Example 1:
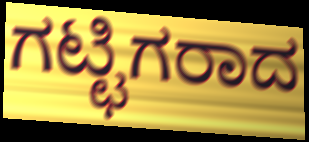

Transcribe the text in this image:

ಗಟ್ಟಿಗರಾದ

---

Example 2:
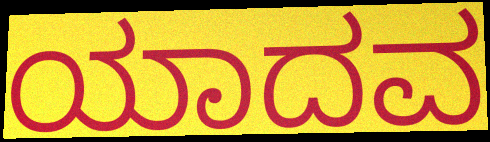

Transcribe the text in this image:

ಯಾದವ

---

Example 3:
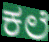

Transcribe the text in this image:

ಕಲೆ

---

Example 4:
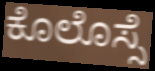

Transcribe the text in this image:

ಕೊಲೊಸ್ಸೆ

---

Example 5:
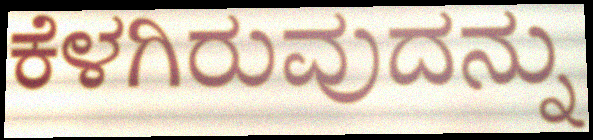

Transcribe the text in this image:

ಕೆಳಗಿರುವುದನ್ನು